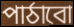
পাঠাবো